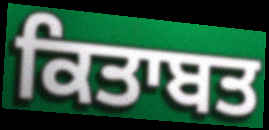
ਕਿਤਾਬਤ